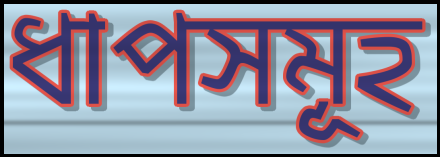
ধাপসমূহ